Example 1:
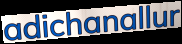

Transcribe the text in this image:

adichanallur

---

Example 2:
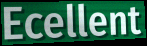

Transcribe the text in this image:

Ecellent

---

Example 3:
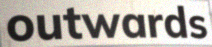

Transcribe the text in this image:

outwards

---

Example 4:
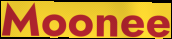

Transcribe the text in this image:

Moonee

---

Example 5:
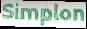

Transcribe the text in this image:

Simplon